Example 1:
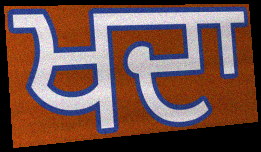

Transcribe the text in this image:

ਖਦਾ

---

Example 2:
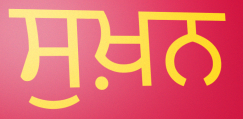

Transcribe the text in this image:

ਸੁਖ਼ਨ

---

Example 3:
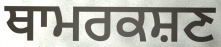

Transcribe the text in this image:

ਥਾਮਰਕਸ਼ਣ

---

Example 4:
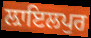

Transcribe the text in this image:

ਲ਼ਾਇਲਪੁਰ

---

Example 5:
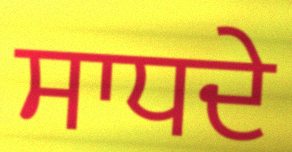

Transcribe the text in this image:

ਸਾਧਦੇ